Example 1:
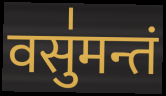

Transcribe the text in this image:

वसु॑मन्तं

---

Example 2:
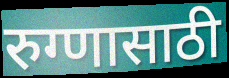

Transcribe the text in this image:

रुग्णासाठी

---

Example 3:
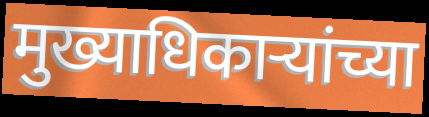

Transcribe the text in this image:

मुख्याधिकाऱ्यांच्या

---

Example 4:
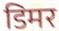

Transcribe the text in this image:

डिमर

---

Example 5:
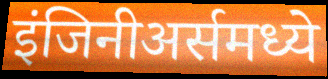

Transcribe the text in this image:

इंजिनीअर्समध्ये